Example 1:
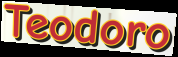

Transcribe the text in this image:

Teodoro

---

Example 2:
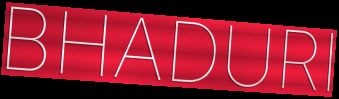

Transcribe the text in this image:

BHADURI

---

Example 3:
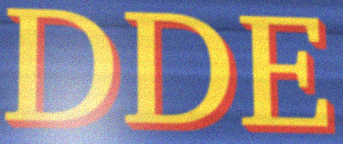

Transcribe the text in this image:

DDE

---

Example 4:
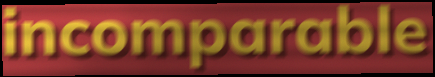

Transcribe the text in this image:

incomparable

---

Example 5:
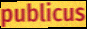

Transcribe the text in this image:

publicus